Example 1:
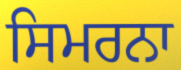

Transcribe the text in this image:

ਸਿਮਰਨਾ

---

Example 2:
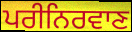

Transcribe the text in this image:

ਪਰੀਨਿਰਵਾਣ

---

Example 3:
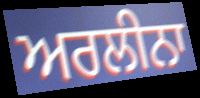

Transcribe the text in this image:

ਅਰਲੀਨਾ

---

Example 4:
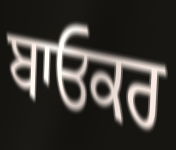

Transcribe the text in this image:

ਬਾਓਕਰ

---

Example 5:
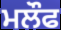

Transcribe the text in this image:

ਮਲੌਫ